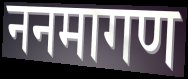
ननमागण